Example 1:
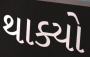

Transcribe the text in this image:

થાક્યો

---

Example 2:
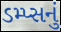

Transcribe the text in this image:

ડમ્પ્સનું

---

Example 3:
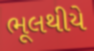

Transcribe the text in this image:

ભૂલથીયે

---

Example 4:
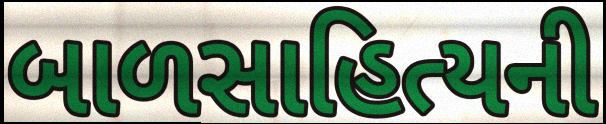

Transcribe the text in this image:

બાળસાહિત્યની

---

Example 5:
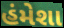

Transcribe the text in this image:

હંમેશા